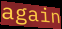
again